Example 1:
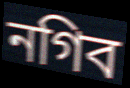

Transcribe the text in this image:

নগিব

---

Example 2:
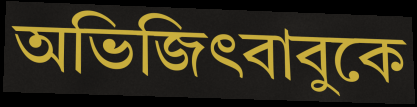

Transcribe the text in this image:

অভিজিৎবাবুকে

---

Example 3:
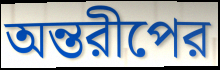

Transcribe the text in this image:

অন্তরীপের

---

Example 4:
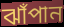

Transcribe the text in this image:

ঝাঁপান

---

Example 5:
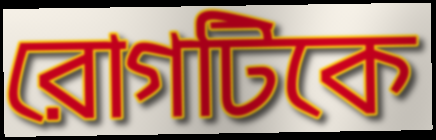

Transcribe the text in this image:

রোগটিকে